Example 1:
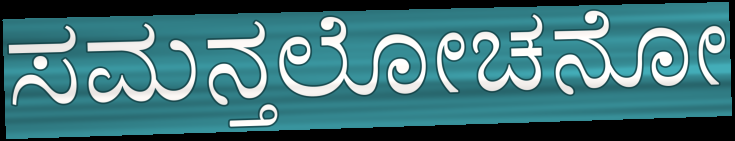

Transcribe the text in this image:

ಸಮನ್ತಲೋಚನೋ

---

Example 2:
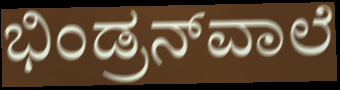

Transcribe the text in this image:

ಭಿಂಡ್ರನ್‌ವಾಲೆ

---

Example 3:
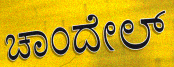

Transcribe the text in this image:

ಚಾಂದೇಲ್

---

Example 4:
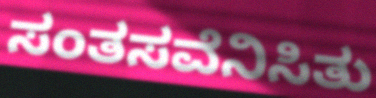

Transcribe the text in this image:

ಸಂತಸವೆನಿಸಿತು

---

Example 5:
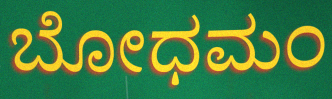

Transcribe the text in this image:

ಬೋಧಮಂ